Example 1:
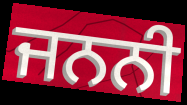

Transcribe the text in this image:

ਜਨਨੀ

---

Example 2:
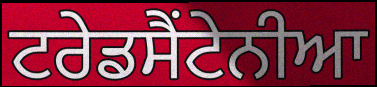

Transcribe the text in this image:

ਟਰੇਡਸੈਂਟੇਨੀਆ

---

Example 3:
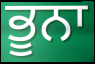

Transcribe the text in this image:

ਭੂਨਾ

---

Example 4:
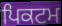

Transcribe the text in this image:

ਪਿਕਟਮ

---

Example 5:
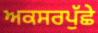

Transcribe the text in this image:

ਅਕਸਰਪੁੱਛੇ